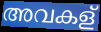
അവകള്